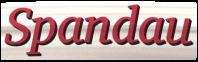
Spandau